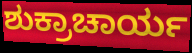
ಶುಕ್ರಾಚಾರ್ಯ